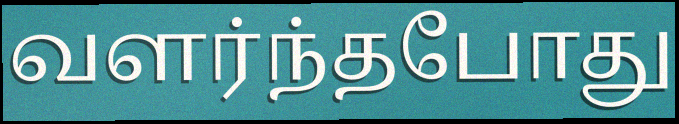
வளர்ந்தபோது